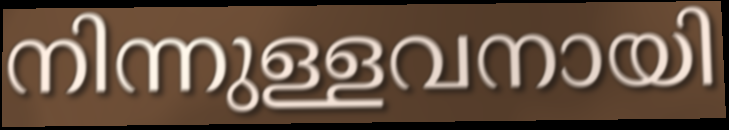
നിന്നുള്ളവനായി